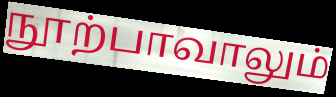
நூற்பாவாலும்